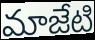
మాజేటి